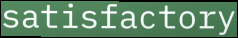
satisfactory